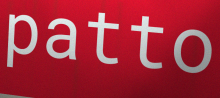
patto